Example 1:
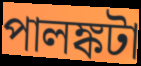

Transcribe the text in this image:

পালঙ্কটা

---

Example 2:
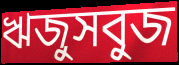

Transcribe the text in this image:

ঋজুসবুজ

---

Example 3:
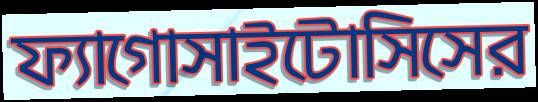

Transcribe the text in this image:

ফ্যাগোসাইটোসিসের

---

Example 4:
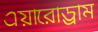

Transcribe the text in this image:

এয়ারোড্রাম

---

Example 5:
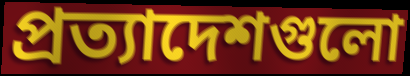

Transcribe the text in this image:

প্রত্যাদেশগুলো